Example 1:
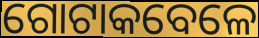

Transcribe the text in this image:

ଗୋଟାକବେଳେ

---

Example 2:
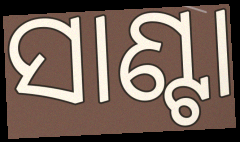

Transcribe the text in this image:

ସାଣ୍ଟା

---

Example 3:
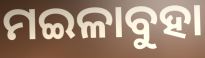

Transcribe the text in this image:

ମଇଳାବୁହା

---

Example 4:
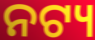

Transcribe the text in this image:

ନଟ୍ୟ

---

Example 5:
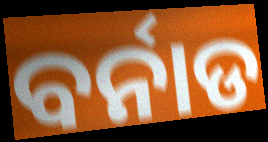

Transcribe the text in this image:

ବର୍ନାଡ